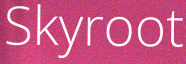
Skyroot